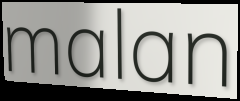
malan